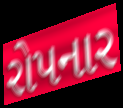
રોપનાર